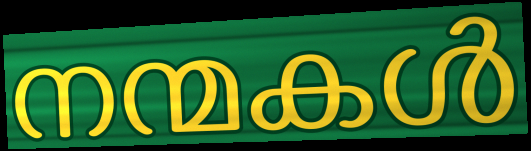
നന്മകൾ